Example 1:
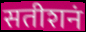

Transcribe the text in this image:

सतीशनं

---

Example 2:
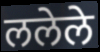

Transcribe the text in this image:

ललेले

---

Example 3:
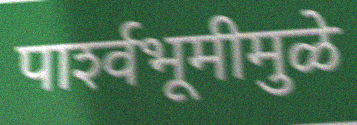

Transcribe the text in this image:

पार्श्‍वभूमीमुळे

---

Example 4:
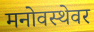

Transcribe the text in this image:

मनोवस्थेवर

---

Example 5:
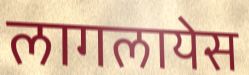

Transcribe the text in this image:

लागलायेस